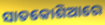
ସାତକୋଶିଆରେ